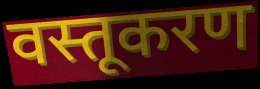
वस्तूकरण